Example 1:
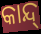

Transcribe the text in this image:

କାନ୍ଦ୍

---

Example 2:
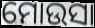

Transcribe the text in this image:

ମୋଉସା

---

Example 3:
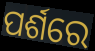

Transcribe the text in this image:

ପର୍ଶରେ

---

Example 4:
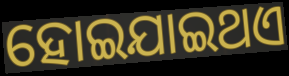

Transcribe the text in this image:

ହୋଇଯାଇଥଏ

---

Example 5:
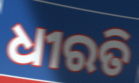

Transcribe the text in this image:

ଧୀରତି